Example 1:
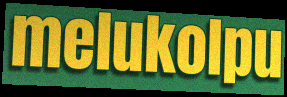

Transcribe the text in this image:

melukolpu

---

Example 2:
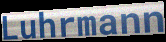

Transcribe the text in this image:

Luhrmann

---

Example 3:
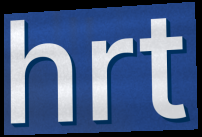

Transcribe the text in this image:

hrt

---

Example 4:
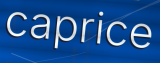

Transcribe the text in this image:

caprice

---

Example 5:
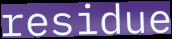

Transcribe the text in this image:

residue